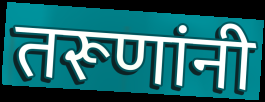
तरूणांनी